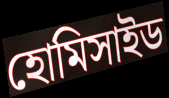
হোমিসাইড